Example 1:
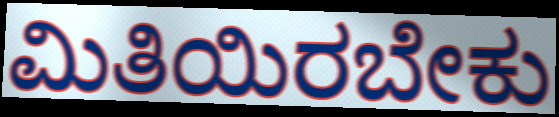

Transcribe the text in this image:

ಮಿತಿಯಿರಬೇಕು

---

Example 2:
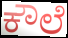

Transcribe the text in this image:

ಕೌಲೆ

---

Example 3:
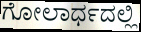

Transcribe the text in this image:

ಗೋಲಾರ್ಧದಲ್ಲಿ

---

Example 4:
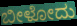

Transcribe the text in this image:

ಬೀಳೋದು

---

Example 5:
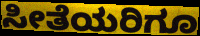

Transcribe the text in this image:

ಸೀತೆಯರಿಗೂ